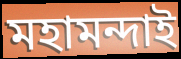
মহামন্দাই